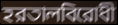
হরতালবিরোধী